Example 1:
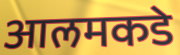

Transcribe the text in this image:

आलमकडे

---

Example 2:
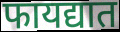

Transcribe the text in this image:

फायद्यात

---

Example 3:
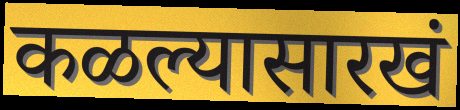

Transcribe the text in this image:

कळल्यासारखं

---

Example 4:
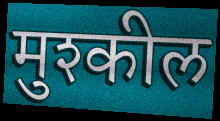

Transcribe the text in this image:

मुश्कील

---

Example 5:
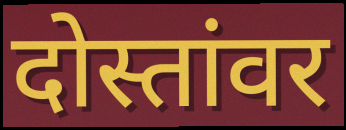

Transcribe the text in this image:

दोस्तांवर